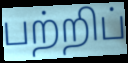
பற்றிப்